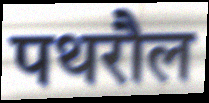
पथरौल